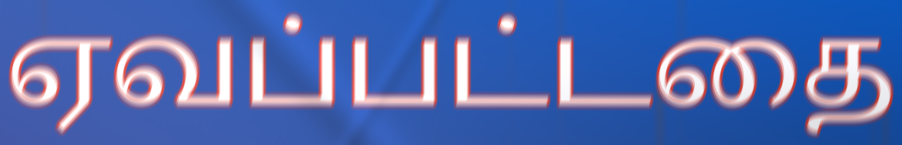
ஏவப்பட்டதை